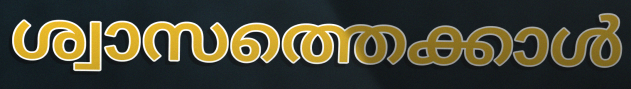
ശ്വാസത്തെക്കാൾ